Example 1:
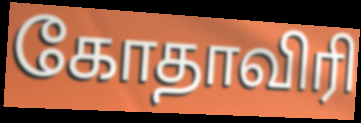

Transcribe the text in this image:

கோதாவிரி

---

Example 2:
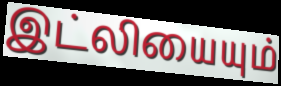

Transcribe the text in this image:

இட்லியையும்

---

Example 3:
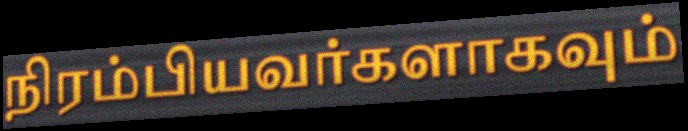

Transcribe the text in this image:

நிரம்பியவர்களாகவும்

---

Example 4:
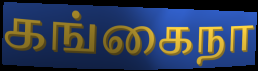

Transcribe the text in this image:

கங்கைநா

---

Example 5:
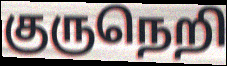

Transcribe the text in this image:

குருநெறி